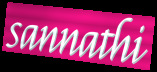
sannathi